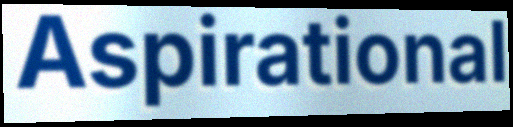
Aspirational